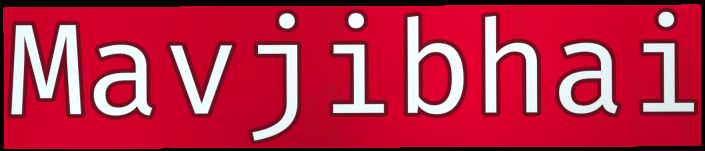
Mavjibhai